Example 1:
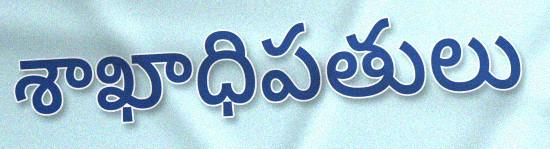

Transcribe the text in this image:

శాఖాధిపతులు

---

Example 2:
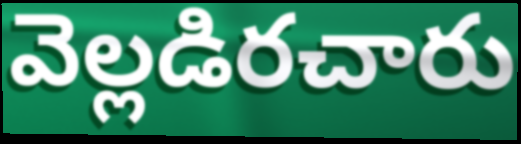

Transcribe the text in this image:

వెల్లడిరచారు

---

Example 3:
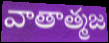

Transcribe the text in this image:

వాతాత్మజ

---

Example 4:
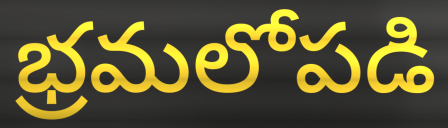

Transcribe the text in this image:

భ్రమలోపడి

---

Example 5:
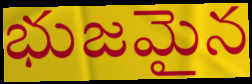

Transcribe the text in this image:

భుజమైన